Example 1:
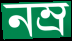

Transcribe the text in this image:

নম্ৰ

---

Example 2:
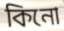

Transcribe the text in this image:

কিনো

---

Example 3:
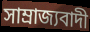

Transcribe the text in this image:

সাম্ৰাজ্যবাদী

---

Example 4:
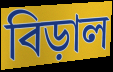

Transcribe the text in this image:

বিড়াল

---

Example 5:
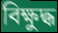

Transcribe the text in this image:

বিক্ষুদ্ধ